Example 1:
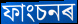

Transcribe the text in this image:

ফাংচনৰ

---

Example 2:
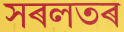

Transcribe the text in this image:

সৰলতৰ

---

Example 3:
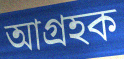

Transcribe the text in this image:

আগ্ৰহক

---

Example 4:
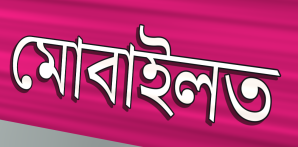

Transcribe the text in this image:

মোবাইলত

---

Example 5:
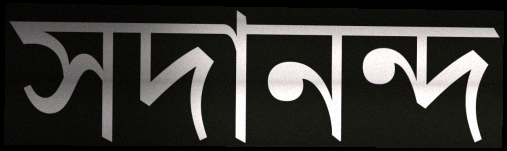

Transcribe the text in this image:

সদানন্দ